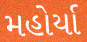
મહોર્યા